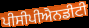
ਪੀਸੀਪੀਐਨਡੀਟੀ